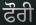
ਫੌਰੀ